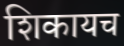
शिकायच